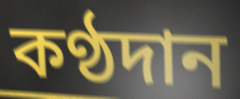
কণ্ঠদান